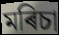
মৰিচা